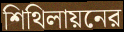
শিথিলায়নের